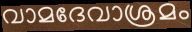
വാമദേവാശ്രമം